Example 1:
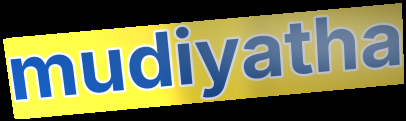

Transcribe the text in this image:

mudiyatha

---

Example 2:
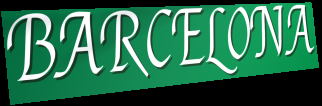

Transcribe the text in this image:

BARCELONA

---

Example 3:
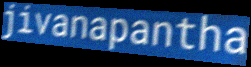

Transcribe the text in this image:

jivanapantha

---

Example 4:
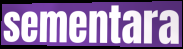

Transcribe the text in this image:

sementara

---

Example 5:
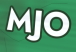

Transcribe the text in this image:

MJO